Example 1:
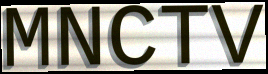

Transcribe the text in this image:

MNCTV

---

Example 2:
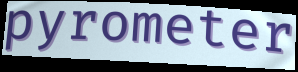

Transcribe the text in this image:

pyrometer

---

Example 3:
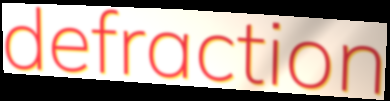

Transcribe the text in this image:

defraction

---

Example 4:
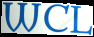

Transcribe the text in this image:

WCL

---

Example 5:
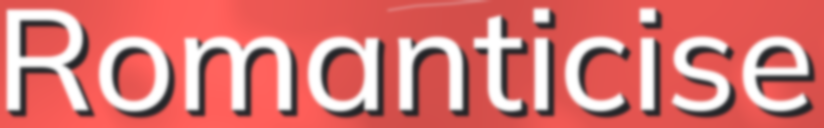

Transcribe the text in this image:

Romanticise